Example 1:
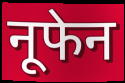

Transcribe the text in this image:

नूफेन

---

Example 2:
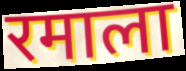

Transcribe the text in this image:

रमाला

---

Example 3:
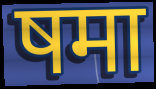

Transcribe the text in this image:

षमा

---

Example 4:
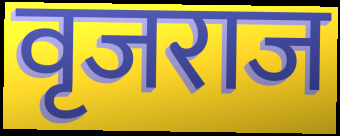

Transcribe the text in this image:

वृजराज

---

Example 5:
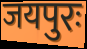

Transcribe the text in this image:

जयपुरः